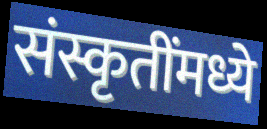
संस्कृतींमध्ये